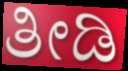
ತೀಡಿ